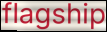
flagship